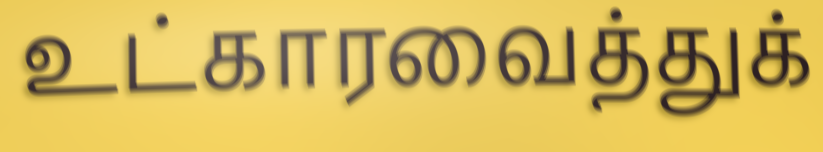
உட்காரவைத்துக்